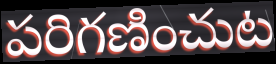
పరిగణించుట